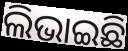
ଲିଭାଇଛି